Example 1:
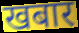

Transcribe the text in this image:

खबार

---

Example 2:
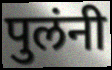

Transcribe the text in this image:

पुलंनी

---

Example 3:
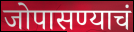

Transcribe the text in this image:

जोपासण्याचं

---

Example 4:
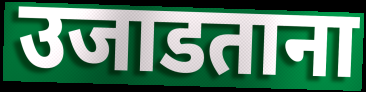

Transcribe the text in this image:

उजाडताना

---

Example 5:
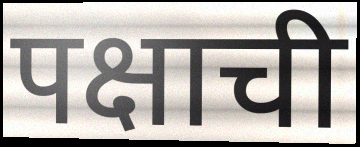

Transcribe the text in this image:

पक्षाची